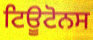
ਟਿਊਟੋਨਸ